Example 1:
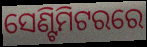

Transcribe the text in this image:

ସେଣ୍ଟିମିଟରରେ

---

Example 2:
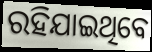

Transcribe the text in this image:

ରହିଯାଇଥିବେ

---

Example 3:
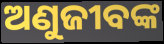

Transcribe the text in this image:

ଅଣୁଜୀବଙ୍କ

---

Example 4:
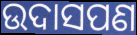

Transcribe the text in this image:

ଉଦାସପଣ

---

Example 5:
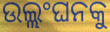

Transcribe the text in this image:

ଉଲ୍ଲଂଘନକୁ